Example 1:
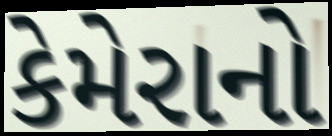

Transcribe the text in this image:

કેમેરાનો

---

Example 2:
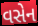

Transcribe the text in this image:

વસેન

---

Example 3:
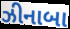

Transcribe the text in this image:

ઝીનાબા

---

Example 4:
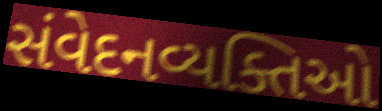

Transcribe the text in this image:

સંવેદનવ્યક્તિઓ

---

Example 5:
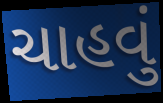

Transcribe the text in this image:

ચાહવું